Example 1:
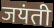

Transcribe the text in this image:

जयंती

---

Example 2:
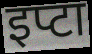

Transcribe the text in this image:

इप्टा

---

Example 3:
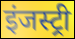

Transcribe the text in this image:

इंजस्ट्री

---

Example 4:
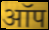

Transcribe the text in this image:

ऑप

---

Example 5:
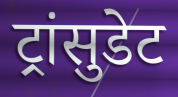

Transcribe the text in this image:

ट्रांसुडेट